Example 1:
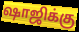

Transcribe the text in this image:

ஷாஜிக்கு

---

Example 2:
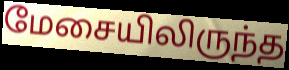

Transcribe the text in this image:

மேசையிலிருந்த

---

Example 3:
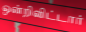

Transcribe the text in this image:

ஒன்றிவிட்டார்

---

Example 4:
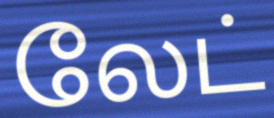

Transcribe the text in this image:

லேட்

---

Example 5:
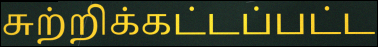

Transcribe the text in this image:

சுற்றிக்கட்டப்பட்ட